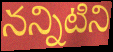
నన్నిటిని